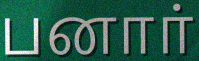
பனார்